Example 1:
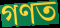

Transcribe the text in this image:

গণত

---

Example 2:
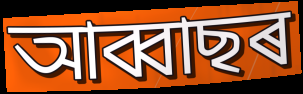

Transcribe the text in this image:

আব্বাছৰ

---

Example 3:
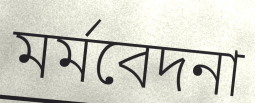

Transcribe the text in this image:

মৰ্মবেদনা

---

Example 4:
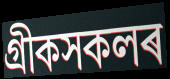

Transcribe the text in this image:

গ্ৰীকসকলৰ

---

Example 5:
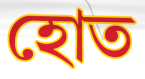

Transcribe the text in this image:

হোত